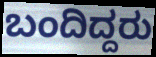
ಬಂದಿದ್ದರು